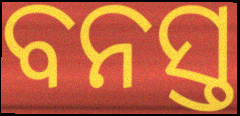
ବନସ୍ତ